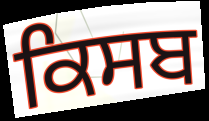
ਕਿਸਬ